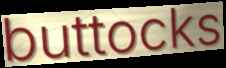
buttocks